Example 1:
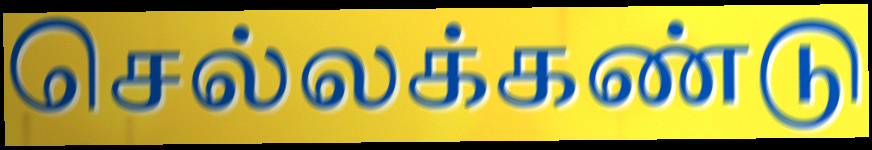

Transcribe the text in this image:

செல்லக்கண்டு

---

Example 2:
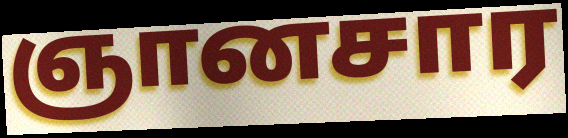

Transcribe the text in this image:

ஞானசார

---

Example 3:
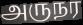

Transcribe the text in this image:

அருநர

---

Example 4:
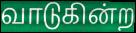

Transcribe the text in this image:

வாடுகின்ற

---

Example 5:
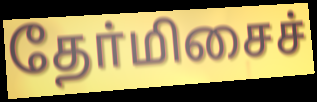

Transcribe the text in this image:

தேர்மிசைச்